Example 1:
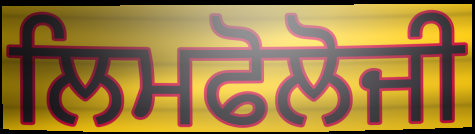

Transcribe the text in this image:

ਲਿਮਫੋਲੋਜੀ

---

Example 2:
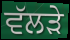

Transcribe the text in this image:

ਵੱਲੜੇ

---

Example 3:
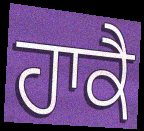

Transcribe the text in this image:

ਹਾਕੈ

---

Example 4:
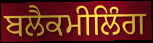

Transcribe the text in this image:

ਬਲੈਕਮੀਲਿੰਗ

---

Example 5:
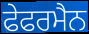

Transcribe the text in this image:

ਫੇਫਰਮੈਨ